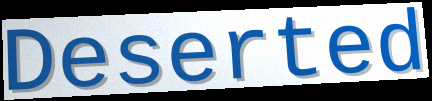
Deserted